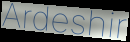
Ardeshir